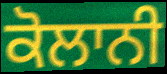
ਕੋਲਾਨੀ